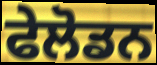
ਫੇਲੋਡਨ